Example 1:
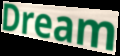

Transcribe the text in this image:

Dream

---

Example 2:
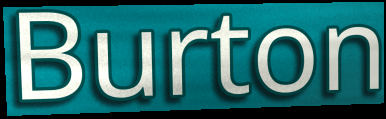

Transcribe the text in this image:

Burton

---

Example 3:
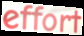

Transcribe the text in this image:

effort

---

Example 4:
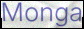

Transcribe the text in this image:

Monga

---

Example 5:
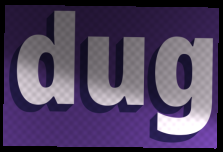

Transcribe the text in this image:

dug